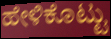
ಹೇಳಿಕೊಟ್ಟು